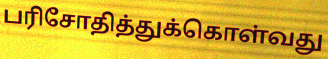
பரிசோதித்துக்கொள்வது